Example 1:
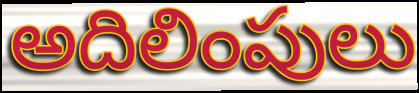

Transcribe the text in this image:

అదిలింపులు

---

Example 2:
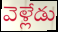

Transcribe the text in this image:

వెళ్లేడు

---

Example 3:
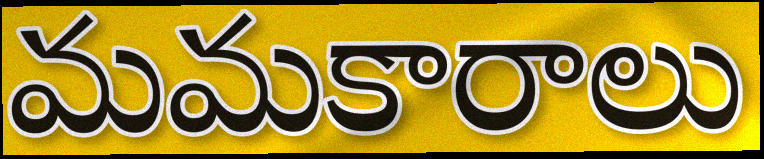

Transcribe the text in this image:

మమకారాలు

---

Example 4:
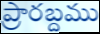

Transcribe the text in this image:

ప్రారబ్దము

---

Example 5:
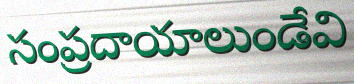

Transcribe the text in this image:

సంప్రదాయాలుండేవి